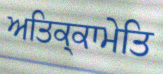
ਅਤਿਕ੍ਕਾਮੇਤਿ